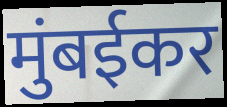
मुंबईकर